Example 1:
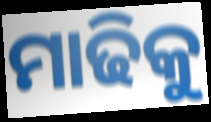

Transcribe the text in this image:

ମାଢିକୁ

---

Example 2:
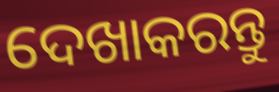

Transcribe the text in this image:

ଦେଖାକରନ୍ତୁ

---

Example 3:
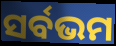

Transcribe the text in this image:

ସର୍ବଭମ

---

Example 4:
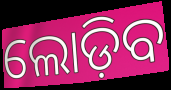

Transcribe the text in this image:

ଲୋଡ଼ିବ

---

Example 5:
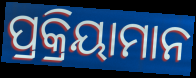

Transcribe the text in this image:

ପ୍ରକ୍ରିୟାମାନ